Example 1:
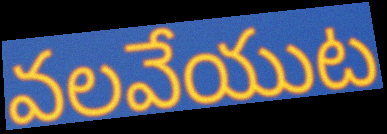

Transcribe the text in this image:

వలవేయుట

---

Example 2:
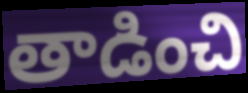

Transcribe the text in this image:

తాడించి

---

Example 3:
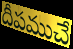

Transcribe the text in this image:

దీపముచే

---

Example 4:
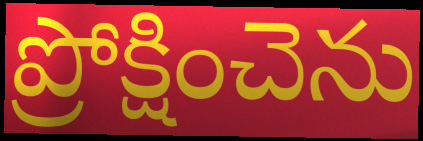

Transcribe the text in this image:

ప్రోక్షించెను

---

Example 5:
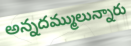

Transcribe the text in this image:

అన్నదమ్ములున్నారు